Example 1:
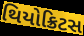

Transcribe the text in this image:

થિયોક્રિટસ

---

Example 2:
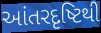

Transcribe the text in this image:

આંતરદૃષ્ટિથી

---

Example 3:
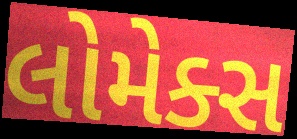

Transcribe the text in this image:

લોમેક્સ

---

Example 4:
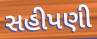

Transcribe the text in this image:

સહીપણી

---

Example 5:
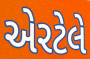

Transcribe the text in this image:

એરટેલે